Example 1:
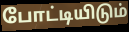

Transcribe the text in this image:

போட்டியிடும்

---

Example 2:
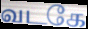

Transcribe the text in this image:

வடகே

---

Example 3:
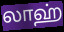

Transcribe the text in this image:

லாஹ்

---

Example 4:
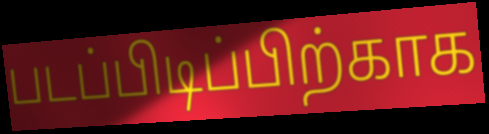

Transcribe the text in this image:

படப்பிடிப்பிற்காக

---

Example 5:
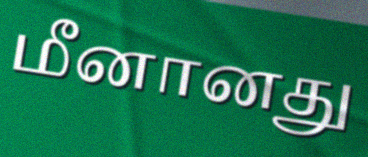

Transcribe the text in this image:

மீனானது